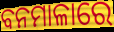
ବନମାଳାରେ